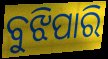
ବୁଝିପାରି